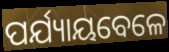
ପର୍ଯ୍ୟାୟବେଳେ